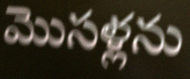
మొసళ్లను